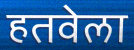
हतवेला